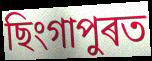
ছিংগাপুৰত